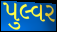
પુલ્વર